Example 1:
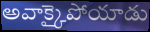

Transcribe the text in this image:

అవాక్కైపోయాడు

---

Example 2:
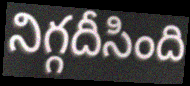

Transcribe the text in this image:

నిగ్గదీసింది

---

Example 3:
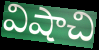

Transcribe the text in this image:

విషాచి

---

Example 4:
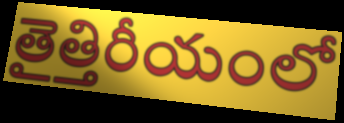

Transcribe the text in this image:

తైత్తిరీయంలో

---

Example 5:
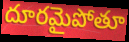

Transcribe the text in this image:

దూరమైపోతూ